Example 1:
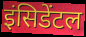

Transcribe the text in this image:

इंसिडेंटल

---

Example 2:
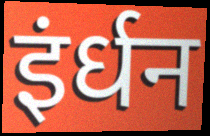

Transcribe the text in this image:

इंर्धन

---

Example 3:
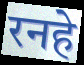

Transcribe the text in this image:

रनहे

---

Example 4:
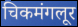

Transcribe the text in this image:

चिकमंगलूर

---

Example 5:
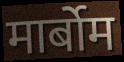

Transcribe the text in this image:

मार्बोम